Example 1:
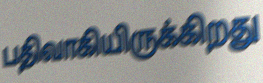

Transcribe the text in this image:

பதிவாகியிருக்கிறது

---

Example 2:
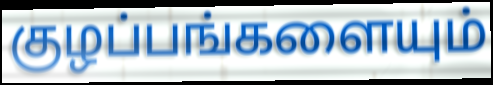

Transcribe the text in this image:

குழப்பங்களையும்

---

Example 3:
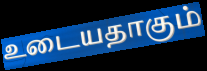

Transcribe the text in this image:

உடையதாகும்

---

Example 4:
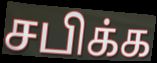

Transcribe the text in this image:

சபிக்க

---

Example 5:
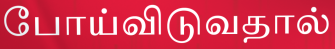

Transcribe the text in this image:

போய்விடுவதால்